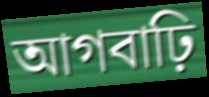
আগবাঢ়ি